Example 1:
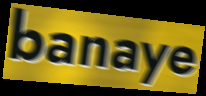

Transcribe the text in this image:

banaye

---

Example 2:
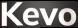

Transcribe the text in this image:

Kevo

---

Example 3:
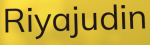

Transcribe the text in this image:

Riyajudin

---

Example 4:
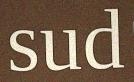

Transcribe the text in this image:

sud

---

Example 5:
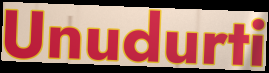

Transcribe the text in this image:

Unudurti